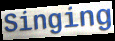
Singing